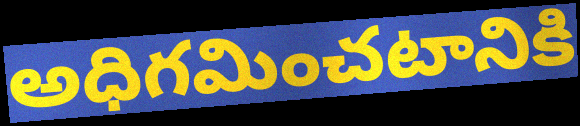
అధిగమించటానికి